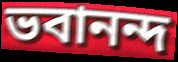
ভবানন্দ